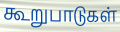
கூறுபாடுகள்